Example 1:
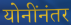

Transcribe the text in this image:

योनींनंतर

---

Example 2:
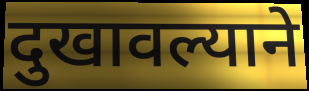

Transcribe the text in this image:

दुखावल्याने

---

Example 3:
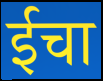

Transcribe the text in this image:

ईचा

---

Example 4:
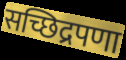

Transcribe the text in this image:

सच्छिद्रपणा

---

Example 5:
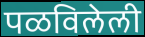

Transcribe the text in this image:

पळविलेली